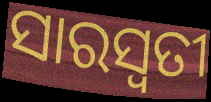
ସାରସ୍ୱତୀ